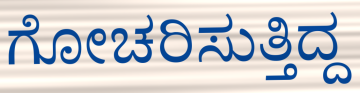
ಗೋಚರಿಸುತ್ತಿದ್ದ